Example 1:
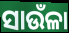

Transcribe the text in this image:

ସାଉଁଳା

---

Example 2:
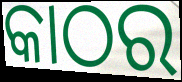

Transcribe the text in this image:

କାଠର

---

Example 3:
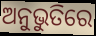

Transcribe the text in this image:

ଅନୁଭୁତିରେ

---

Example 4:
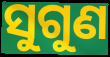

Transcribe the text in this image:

ସୁଗୁଣ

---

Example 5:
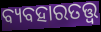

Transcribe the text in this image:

ବ୍ୟବହାରତତ୍ତ୍ବ